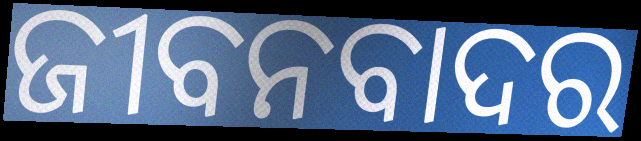
ଜୀବନବାଦର